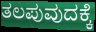
ತಲಪುವುದಕ್ಕೆ